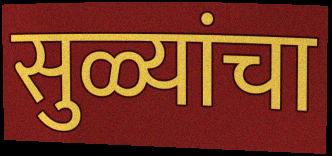
सुळ्यांचा